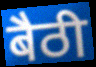
बैठी